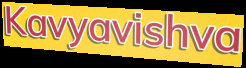
Kavyavishva